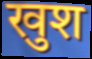
खुश